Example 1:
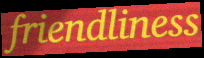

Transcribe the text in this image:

friendliness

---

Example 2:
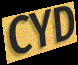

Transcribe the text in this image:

CYD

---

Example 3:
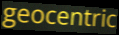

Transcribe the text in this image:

geocentric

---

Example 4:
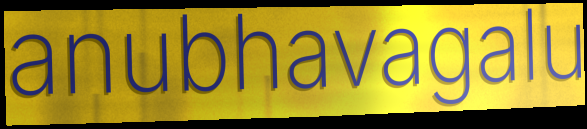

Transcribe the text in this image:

anubhavagalu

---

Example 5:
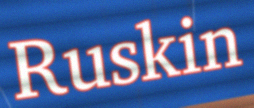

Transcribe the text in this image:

Ruskin